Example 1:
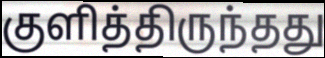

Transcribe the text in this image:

குளித்திருந்தது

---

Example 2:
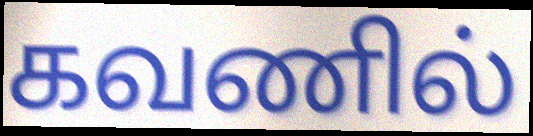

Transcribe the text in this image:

கவணில்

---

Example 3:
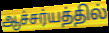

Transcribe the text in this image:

ஆச்சர்யத்தில்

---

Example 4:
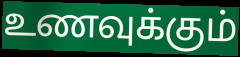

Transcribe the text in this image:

உணவுக்கும்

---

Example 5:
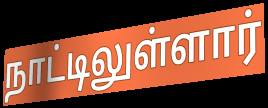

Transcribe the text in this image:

நாட்டிலுள்ளார்